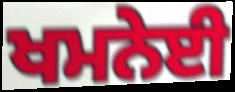
ਖਮਨੇਈ